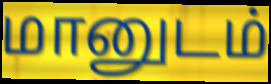
மானுடம்